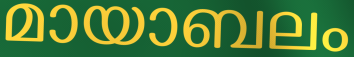
മായാബലം